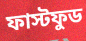
ফাস্টফুড